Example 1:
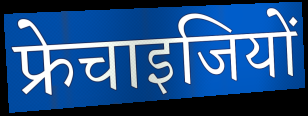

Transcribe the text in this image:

फ्रेचाइजियों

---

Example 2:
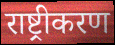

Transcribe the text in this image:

राष्ट्रीकरण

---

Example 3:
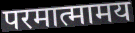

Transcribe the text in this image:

परमात्मामय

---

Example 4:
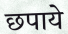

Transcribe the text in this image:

छपाये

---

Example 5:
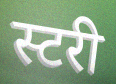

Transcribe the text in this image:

स्टरी